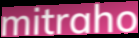
mitraho